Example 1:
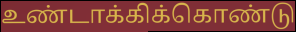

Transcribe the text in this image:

உண்டாக்கிக்கொண்டு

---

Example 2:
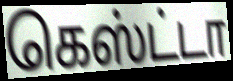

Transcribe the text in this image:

கெஸ்ட்டா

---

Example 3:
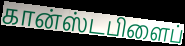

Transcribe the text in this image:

கான்ஸ்டபிளைப்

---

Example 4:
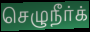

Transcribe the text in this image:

செழுநீர்க்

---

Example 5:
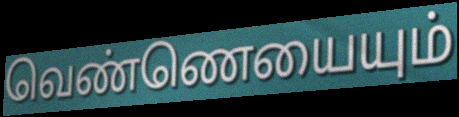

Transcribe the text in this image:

வெண்ணெயையும்